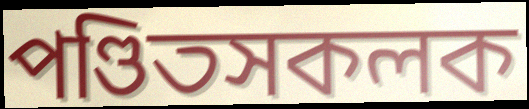
পণ্ডিতসকলক